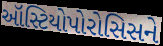
ઑસ્ટિયોપોરોસિસને